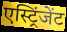
एस्ट्रिंजेंट